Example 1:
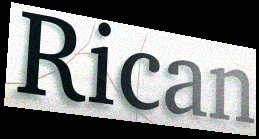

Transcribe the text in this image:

Rican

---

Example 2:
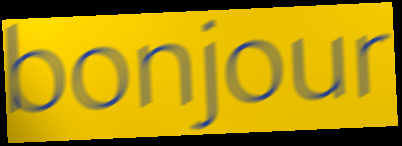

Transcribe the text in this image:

bonjour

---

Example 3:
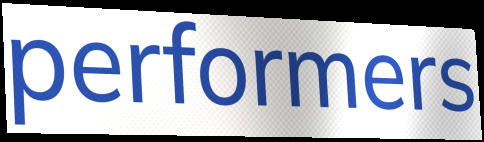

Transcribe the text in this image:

performers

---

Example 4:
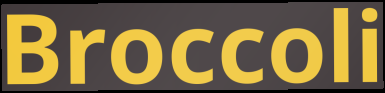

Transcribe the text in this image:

Broccoli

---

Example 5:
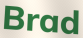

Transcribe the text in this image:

Brad